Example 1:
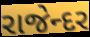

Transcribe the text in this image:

રાજેન્દર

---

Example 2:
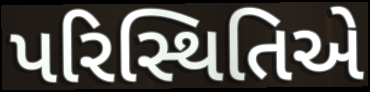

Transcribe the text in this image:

પરિસ્થિતિએ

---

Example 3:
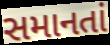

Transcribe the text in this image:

સમાનતાં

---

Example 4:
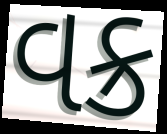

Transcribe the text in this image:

વક્ર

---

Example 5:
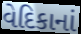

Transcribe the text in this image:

વેદિકાનાં